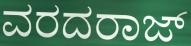
ವರದರಾಜ್